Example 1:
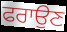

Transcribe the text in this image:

ਫਰਾਉਣ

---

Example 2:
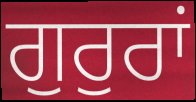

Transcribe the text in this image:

ਗੁਰੁਰਾਂ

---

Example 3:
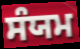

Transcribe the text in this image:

ਸੰਯਮ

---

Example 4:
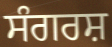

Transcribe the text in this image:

ਸੰਗਰਸ਼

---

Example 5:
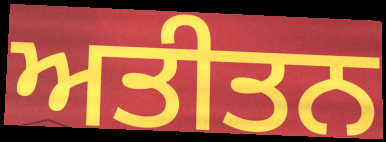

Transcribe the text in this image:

ਅਤੀਤਨ